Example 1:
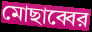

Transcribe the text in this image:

মোছাব্বের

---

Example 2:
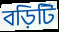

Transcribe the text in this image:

বড়িটি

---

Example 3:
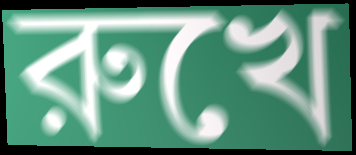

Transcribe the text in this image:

রুখে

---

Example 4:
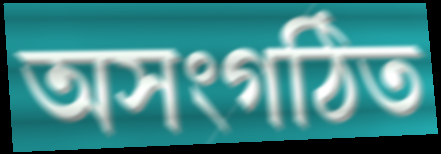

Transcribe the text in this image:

অসংগঠিত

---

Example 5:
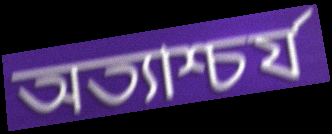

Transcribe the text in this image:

অত্যাশ্চর্য